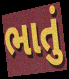
ભાતું